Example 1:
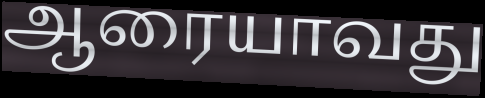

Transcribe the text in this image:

ஆரையாவது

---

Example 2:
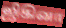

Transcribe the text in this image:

ஜிகினா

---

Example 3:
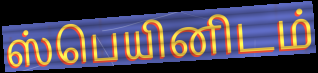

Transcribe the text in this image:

ஸ்பெயினிடம்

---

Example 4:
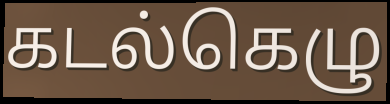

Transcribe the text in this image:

கடல்கெழு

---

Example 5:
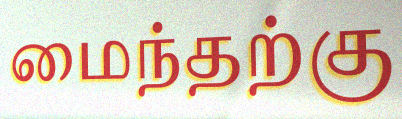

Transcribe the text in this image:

மைந்தற்கு